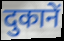
दुकानें